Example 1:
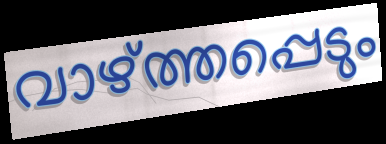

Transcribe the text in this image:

വാഴ്ത്തപ്പെടും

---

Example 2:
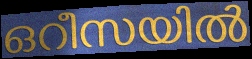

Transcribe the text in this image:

ഒറീസയിൽ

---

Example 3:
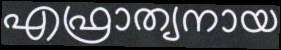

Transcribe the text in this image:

എഫ്രാത്യനായ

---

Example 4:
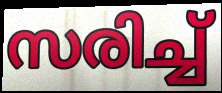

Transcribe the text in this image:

സരിച്ച്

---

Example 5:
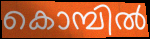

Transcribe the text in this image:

കൊമ്പിൽ